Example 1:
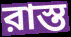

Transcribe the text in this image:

রাস্ত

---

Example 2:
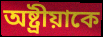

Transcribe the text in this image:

অষ্ট্রীয়াকে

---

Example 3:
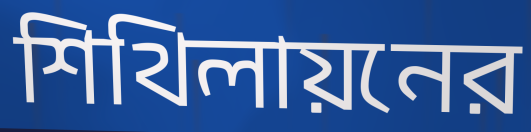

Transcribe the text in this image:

শিথিলায়নের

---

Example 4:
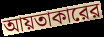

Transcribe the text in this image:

আয়তাকারের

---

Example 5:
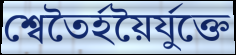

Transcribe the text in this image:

শ্বেতৈর্হয়ৈর্যুক্তে